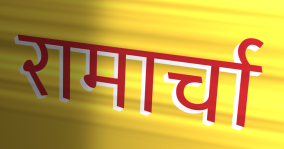
रामार्चा